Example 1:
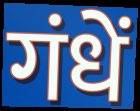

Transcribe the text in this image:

गंधें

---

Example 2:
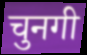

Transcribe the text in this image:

चुनगी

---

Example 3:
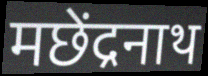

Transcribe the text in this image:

मछेंद्रनाथ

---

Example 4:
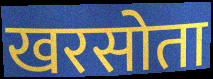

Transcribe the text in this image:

खरसोता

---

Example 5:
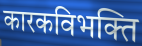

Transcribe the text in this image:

कारकविभक्ति